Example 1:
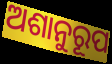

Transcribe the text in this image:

ଅଶାନୁରୂପ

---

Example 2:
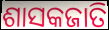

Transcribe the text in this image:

ଶାସକଜାତି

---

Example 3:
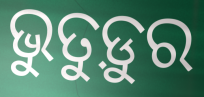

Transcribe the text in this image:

ଭୁତୁଡ଼ୁର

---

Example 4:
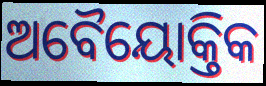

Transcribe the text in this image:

ଅବୈୟୋକ୍ତିକ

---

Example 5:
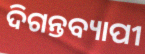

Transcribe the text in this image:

ଦିଗନ୍ତବ୍ୟାପୀ